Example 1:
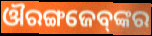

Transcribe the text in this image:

ଔରଙ୍ଗଜେବ୍‌ଙ୍କର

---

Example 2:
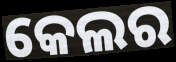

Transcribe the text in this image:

କେଲର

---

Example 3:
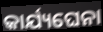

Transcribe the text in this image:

କାର୍ଯ୍ୟଘେନା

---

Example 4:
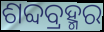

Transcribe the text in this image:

ଶବ୍ଦବ୍ରହ୍ମର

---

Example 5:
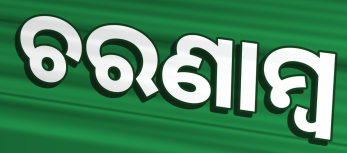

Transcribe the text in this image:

ଚରଣାମ୍ବ